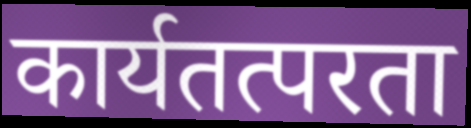
कार्यतत्परता